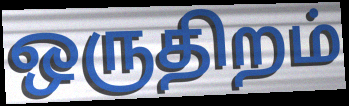
ஒருதிறம்